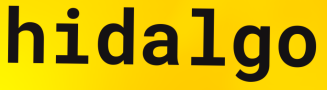
hidalgo